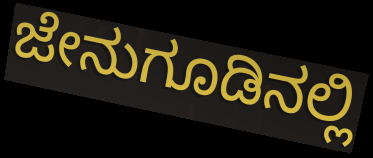
ಜೇನುಗೂಡಿನಲ್ಲಿ